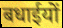
बधाईयों